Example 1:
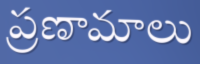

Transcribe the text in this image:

ప్రణామాలు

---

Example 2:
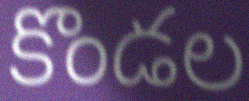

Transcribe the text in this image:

కొండల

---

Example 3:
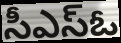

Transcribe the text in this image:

సీఎస్ఓ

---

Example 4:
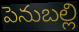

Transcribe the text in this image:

పెనుబల్లి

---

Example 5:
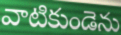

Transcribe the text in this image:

వాటికుండెను